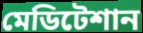
মেডিটেশান